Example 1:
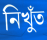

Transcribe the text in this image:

নিখুঁত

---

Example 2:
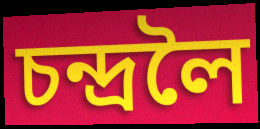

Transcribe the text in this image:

চন্দ্ৰলৈ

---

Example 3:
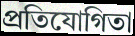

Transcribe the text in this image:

প্ৰতিযোগিতা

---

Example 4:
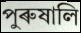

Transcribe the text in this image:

পুৰুষালি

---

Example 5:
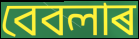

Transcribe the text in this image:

বেবলাৰ